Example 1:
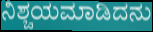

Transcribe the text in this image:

ನಿಶ್ಚಯಮಾಡಿದನು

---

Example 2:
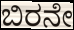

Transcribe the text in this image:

ಬಿರನೇ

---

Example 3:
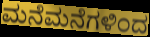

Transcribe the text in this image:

ಮನೆಮನೆಗಳಿಂದ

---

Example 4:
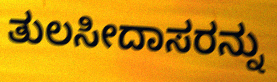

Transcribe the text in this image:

ತುಲಸೀದಾಸರನ್ನು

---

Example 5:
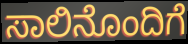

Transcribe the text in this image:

ಸಾಲಿನೊಂದಿಗೆ